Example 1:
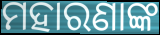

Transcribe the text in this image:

ମହାରଣାଙ୍କ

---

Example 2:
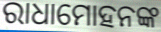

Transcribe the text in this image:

ରାଧାମୋହନଙ୍କ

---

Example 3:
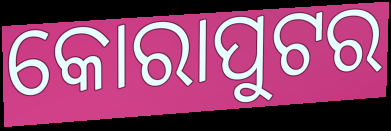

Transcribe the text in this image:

କୋରାପୁଟର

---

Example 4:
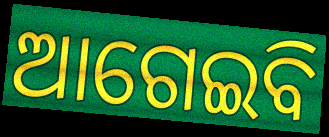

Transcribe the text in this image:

ଆଗେଇବି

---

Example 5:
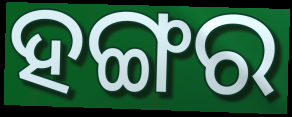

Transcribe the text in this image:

ହଙ୍ଗର